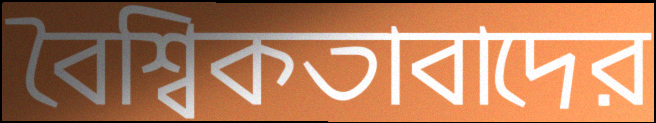
বৈশ্বিকতাবাদের